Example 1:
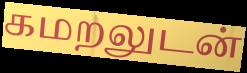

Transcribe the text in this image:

கமறலுடன்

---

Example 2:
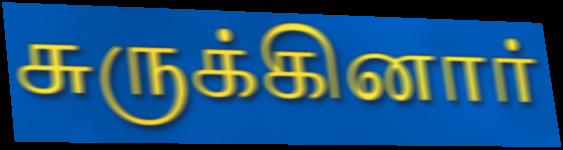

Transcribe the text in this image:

சுருக்கினார்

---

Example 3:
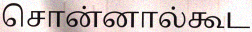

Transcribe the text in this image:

சொன்னால்கூட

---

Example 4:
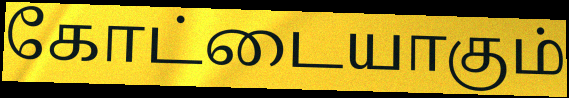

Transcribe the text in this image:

கோட்டையாகும்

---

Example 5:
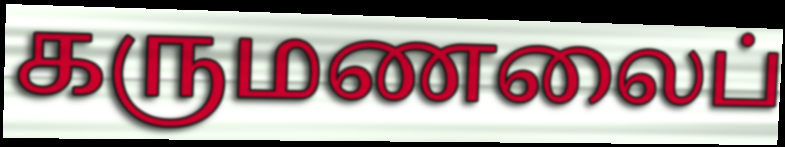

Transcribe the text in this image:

கருமணலைப்